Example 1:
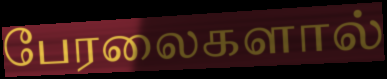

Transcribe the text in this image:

பேரலைகளால்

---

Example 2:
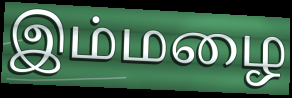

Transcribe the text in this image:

இம்மழை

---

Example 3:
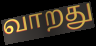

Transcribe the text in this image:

வாறது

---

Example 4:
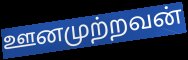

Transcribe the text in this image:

ஊனமுற்றவன்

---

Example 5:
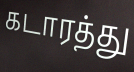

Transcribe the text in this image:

கடாரத்து